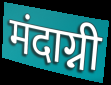
मंदाग्नी